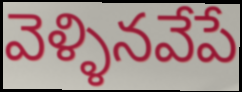
వెళ్ళినవేపే